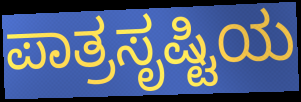
ಪಾತ್ರಸೃಷ್ಟಿಯ